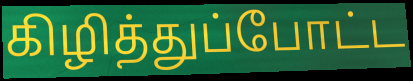
கிழித்துப்போட்ட